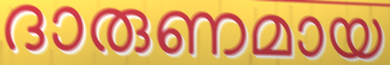
ദാരുണമായ